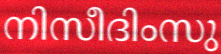
നിസീദിംസു